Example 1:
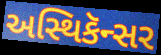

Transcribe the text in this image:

અસ્થિકૅન્સર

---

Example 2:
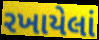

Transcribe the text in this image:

રખાયેલાં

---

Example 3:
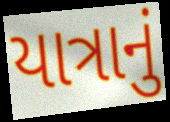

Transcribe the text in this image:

યાત્રાનું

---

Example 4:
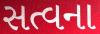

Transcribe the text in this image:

સત્વના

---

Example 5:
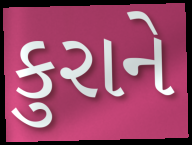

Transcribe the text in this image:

કુરાને